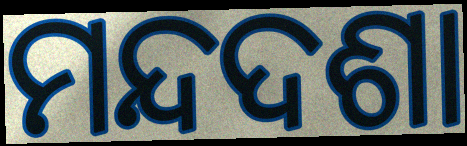
ମନ୍ଦଦଶା